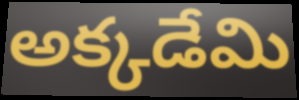
అక్కడేమి